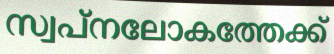
സ്വപ്നലോകത്തേക്ക്